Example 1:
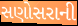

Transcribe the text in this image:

સણોસરાની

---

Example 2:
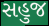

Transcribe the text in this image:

સહુજ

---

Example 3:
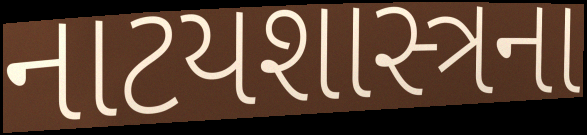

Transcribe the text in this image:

નાટયશાસ્ત્રના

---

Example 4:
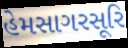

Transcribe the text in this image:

હેમસાગરસૂરિ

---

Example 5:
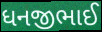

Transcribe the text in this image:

ધનજીભાઈ